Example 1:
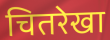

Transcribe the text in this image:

चितरेखा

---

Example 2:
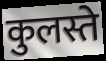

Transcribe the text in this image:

कुलस्ते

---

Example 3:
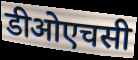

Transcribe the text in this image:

डीओएचसी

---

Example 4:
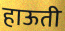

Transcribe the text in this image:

हाऊती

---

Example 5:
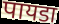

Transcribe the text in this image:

पायडा